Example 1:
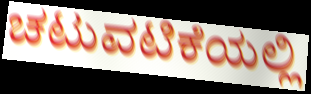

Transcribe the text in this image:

ಚಟುವಟಿಕೆಯಲ್ಲಿ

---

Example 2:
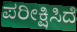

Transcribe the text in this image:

ಪರೀಕ್ಷಿಸಿದೆ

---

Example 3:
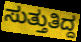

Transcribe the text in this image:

ಸುತ್ತುತಿದ್ದ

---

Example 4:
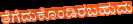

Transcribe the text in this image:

ತೆಗೆದುಕೊಂಡಿರಬಹುದು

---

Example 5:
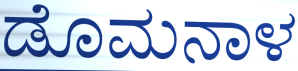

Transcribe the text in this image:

ಡೊಮನಾಳ